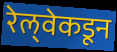
रेल्वेकडून